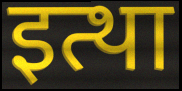
इत्था